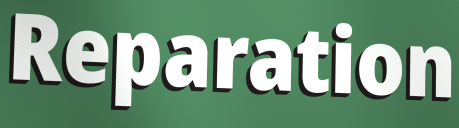
Reparation